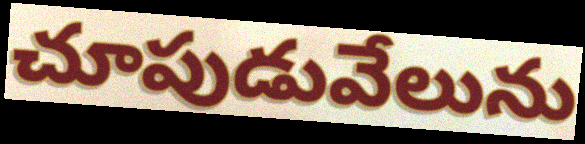
చూపుడువేలును